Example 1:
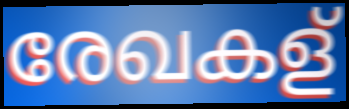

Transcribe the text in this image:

രേഖകള്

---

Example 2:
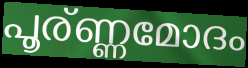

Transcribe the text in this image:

പൂര്ണ്ണമോദം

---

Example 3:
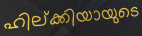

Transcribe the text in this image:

ഹില്ക്കിയായുടെ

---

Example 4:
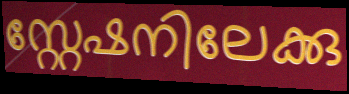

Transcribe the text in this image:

സ്റ്റേഷനിലേക്കു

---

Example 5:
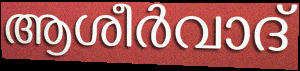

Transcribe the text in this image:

ആശീർവാദ്